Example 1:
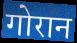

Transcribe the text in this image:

गोरान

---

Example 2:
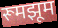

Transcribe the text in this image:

रूमझूम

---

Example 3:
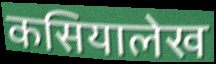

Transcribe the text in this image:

कसियालेख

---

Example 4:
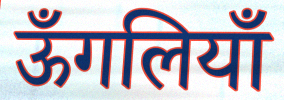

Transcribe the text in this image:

ऊँगलियाँ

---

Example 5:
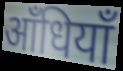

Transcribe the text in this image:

आँधियाँ